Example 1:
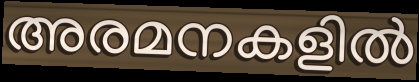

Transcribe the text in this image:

അരമനകളിൽ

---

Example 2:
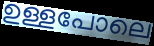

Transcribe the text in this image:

ഉള്ളപോലെ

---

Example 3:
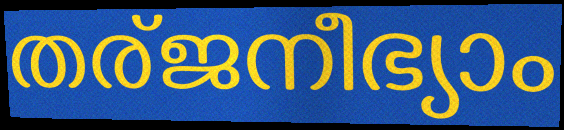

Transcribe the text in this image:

തര്ജനീഭ്യാം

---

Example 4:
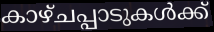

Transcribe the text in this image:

കാഴ്ചപ്പാടുകൾക്ക്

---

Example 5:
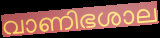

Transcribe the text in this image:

വാണിഭശാല